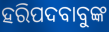
ହରିପଦବାବୁଙ୍କ